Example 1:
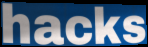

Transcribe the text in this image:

hacks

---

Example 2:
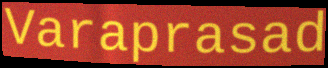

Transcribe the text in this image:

Varaprasad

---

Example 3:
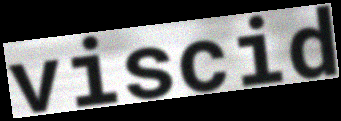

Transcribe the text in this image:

viscid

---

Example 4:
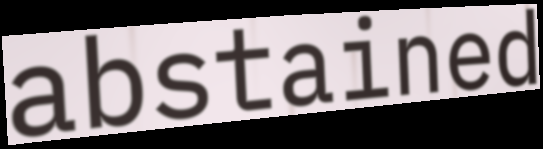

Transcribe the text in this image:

abstained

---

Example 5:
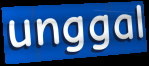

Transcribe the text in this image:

unggal